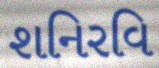
શનિરવિ